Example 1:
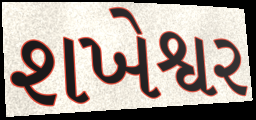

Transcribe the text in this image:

શખેશ્વર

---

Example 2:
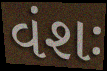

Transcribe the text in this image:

વંશઃ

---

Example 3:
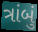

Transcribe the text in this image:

ત્રાંબું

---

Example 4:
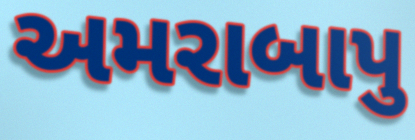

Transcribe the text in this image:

અમરાબાપુ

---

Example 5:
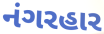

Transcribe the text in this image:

નંગરહાર